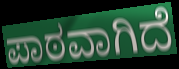
ಪಾಠವಾಗಿದೆ